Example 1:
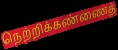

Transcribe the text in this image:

நெற்றிக்கண்ணைத்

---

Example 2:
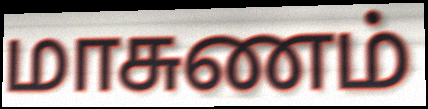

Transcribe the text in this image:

மாசுணம்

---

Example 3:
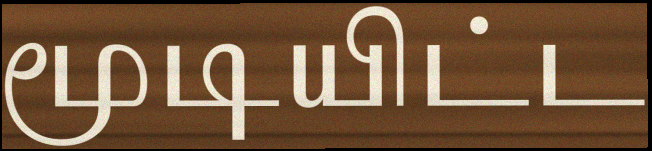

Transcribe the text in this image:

மூடியிட்ட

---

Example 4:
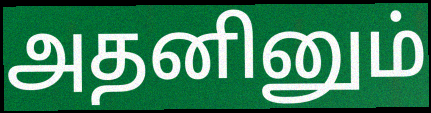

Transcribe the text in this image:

அதனினும்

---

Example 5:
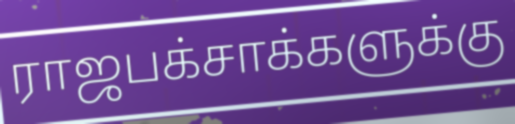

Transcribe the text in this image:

ராஜபக்சாக்களுக்கு